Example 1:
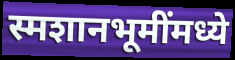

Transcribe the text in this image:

स्मशानभूमींमध्ये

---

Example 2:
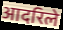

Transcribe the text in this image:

आदरिले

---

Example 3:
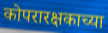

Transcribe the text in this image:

कोपरारक्षकाच्या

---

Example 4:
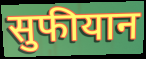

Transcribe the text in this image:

सुफीयान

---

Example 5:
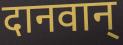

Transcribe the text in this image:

दानवान्